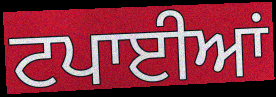
ਟਪਾਈਆਂ